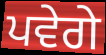
ਪਵੇਗੇ